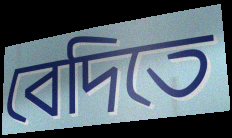
বেদিতে